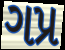
ગપ્ર